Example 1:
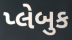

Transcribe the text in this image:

પ્લેબુક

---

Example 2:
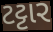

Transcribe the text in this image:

ટટ્ટાર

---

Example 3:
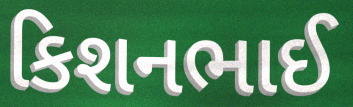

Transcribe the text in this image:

કિશનભાઈ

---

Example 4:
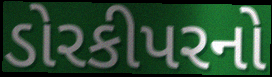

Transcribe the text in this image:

ડોરકીપરનો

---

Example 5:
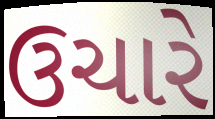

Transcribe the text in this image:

ઉચારે